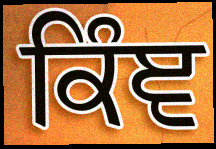
ਕਿੰਞ